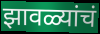
झावळ्यांचं